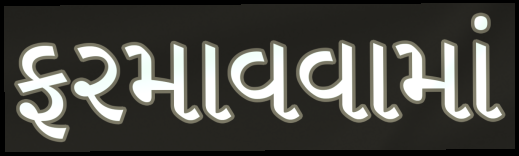
ફરમાવવામાં